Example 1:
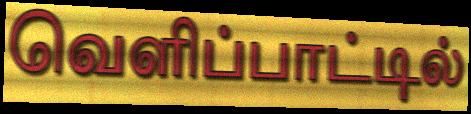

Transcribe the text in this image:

வெளிப்பாட்டில்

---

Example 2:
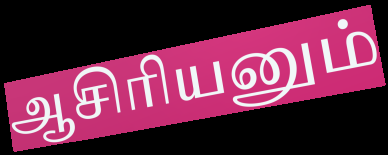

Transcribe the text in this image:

ஆசிரியனும்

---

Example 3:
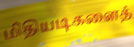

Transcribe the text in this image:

மிதியடிகளைத்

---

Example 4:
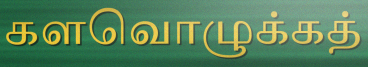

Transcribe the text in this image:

களவொழுக்கத்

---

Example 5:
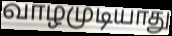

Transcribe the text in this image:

வாழமுடியாது